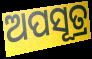
ଅପସୂତ୍ର